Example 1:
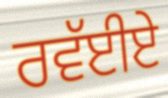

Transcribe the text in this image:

ਰਵੱਈਏ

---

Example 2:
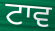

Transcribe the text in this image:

ਟਾਵ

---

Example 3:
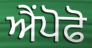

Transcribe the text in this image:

ਐਂਪੋਫੋ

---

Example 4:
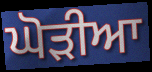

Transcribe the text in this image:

ਘੋੜੀਆ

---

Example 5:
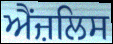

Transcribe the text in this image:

ਐਂਜ਼ਲਿਸ